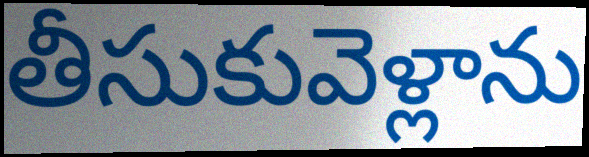
తీసుకువెళ్లాను